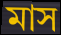
মাস